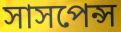
সাসপেন্স